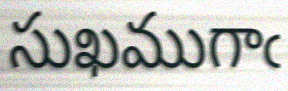
సుఖముగాఁ